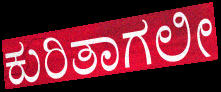
ಕುರಿತಾಗಲೀ